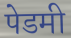
पेडमी